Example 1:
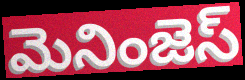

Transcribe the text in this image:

మెనింజెస్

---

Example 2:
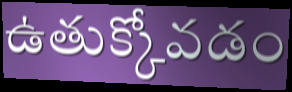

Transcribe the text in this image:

ఉతుక్కోవడం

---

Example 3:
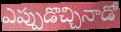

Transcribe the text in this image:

ఎప్పుడొచ్చినాడో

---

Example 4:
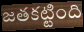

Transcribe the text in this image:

జతకట్టింది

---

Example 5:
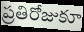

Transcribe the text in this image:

ప్రతిరోజుకూ